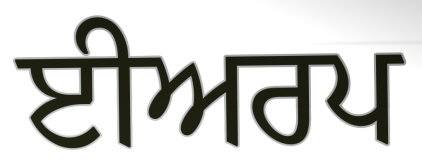
ਈਅਰਪ